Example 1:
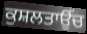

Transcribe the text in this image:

ਕੁਸ਼ਲਤਾਉੱਚ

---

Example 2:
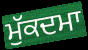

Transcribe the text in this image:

ਮੁੱਕਦਮਾ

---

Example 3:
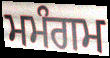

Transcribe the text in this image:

ਮਮੰਗਮ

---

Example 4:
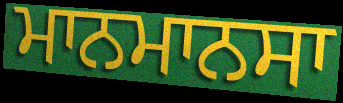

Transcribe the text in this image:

ਮਾਨਮਾਨਸਾ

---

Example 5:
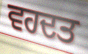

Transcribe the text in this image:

ਵਹਦਤ